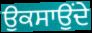
ਉਕਸਾਉਂਦੇ